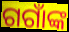
ଗଗାଁଙ୍କ